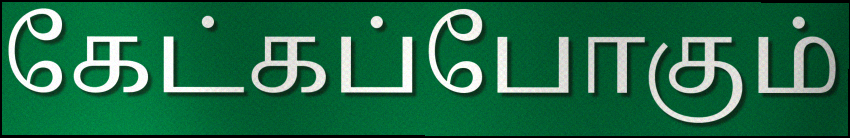
கேட்கப்போகும்